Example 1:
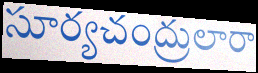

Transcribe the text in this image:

సూర్యచంద్రులారా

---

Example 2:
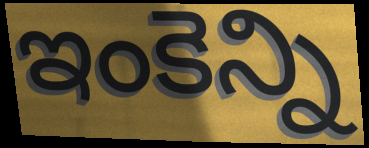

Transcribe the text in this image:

ఇంకెన్ని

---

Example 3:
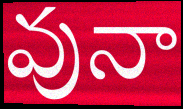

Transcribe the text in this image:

వునా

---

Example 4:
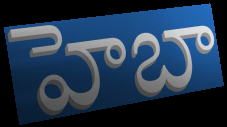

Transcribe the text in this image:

హెబా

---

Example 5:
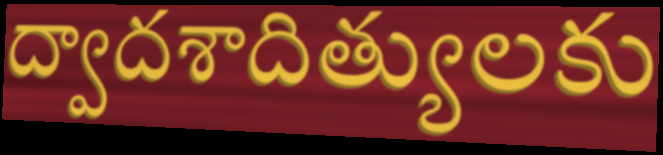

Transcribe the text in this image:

ద్వాదశాదిత్యులకు